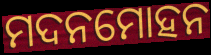
ମଦନମୋହନ